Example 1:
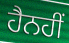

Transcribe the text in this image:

ਹੈਨਹੀਂ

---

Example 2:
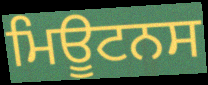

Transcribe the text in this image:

ਮਿਊਟਨਸ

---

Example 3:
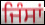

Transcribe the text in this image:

ਜਿੰਸਾਂ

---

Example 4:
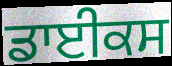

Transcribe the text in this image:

ਡਾਈਕਸ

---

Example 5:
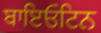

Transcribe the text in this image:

ਬਾਇਓਟਿਨ